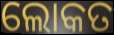
ଲୋକତ